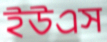
ইউএস